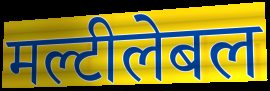
मल्टीलेबल